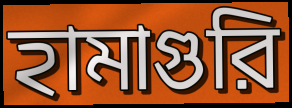
হামাগুরি